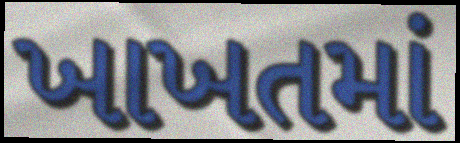
ખાખતમાં